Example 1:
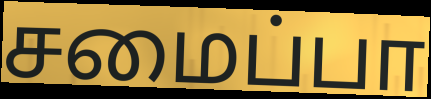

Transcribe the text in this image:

சமைப்பா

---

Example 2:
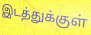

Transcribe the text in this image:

இடத்துக்குள்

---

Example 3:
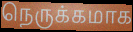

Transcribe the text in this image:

நெருக்கமாக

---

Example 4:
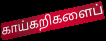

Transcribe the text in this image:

காய்கறிகளைப்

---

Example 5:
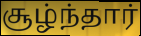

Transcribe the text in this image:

சூழ்ந்தார்